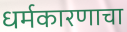
धर्मकारणाचा